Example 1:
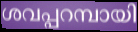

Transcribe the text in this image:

ശവപ്പറമ്പായി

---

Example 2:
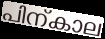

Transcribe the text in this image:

പിന്കാല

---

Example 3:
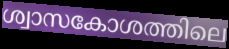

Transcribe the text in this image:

ശ്വാസകോശത്തിലെ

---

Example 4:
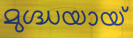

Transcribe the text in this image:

മുഗ്ദ്ധയായ്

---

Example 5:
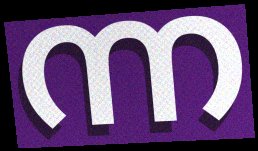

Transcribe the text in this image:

ന്ന